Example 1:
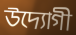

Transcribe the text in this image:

উদ্যোগী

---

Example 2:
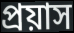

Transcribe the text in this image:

প্ৰয়াস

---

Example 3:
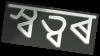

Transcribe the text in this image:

স্বত্বৰ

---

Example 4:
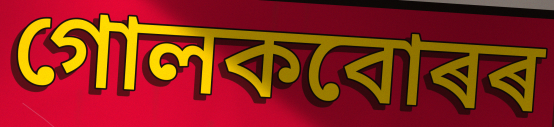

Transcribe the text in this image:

গোলকবোৰৰ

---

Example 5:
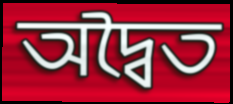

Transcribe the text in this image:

অদ্বৈত